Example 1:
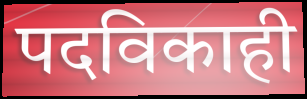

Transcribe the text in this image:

पदविकाही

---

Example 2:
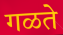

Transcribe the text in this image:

गळते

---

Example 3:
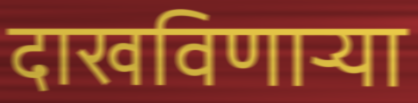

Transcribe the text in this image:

दाखविणाऱ्या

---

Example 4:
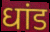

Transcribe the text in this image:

धांड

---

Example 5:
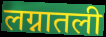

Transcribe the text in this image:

लग्नातली